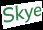
Skye